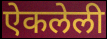
ऐकलेली